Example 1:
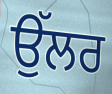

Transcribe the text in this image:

ਉੱਲਰ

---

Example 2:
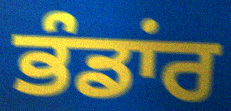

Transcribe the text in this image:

ਭੰਡਾਂਰ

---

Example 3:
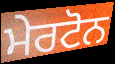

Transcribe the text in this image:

ਮੇਰਟੋਨ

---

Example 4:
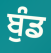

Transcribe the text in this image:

ਬੁੰਡ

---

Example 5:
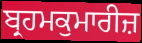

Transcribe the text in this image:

ਬ੍ਰਹਮਕੁਮਾਰੀਜ਼